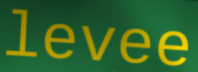
levee